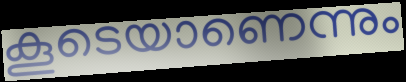
കൂടെയാണെന്നും